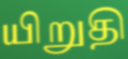
யிறுதி